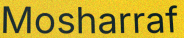
Mosharraf